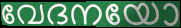
വേദനയോ